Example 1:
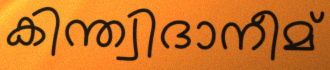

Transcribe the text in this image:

കിന്ത്വിദാനീമ്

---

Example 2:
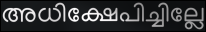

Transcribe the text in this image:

അധിക്ഷേപിച്ചില്ലേ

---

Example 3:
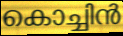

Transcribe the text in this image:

കൊച്ചിൻ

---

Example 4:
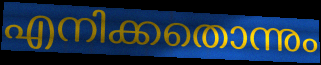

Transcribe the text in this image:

എനിക്കതൊന്നും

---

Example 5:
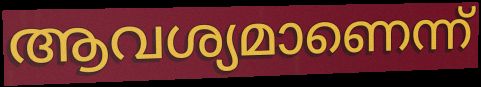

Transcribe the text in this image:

ആവശ്യമാണെന്ന്